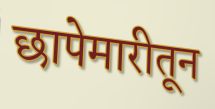
छापेमारीतून